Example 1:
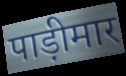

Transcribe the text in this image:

पाड़ीमार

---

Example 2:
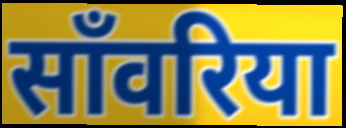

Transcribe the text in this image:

साँवरिया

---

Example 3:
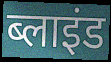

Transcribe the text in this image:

ब्लाइंड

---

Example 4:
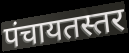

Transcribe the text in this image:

पंचायतस्तर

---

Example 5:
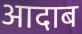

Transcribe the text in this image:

आदाब